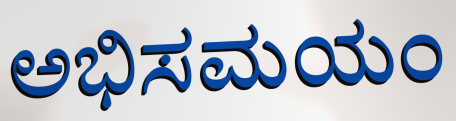
ಅಭಿಸಮಯಂ